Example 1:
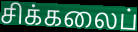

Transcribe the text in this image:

சிக்கலைப்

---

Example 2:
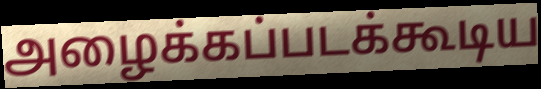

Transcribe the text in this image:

அழைக்கப்படக்கூடிய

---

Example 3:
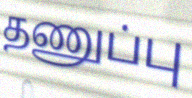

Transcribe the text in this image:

தணுப்பு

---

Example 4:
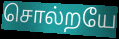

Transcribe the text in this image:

சொல்றயே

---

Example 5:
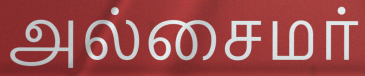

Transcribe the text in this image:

அல்சைமர்